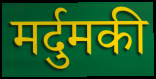
मर्दुमकी